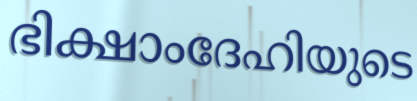
ഭിക്ഷാംദേഹിയുടെ